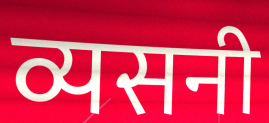
व्यसनी